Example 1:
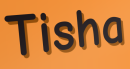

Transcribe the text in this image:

Tisha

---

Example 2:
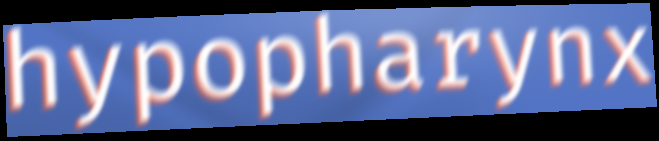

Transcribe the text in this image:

hypopharynx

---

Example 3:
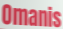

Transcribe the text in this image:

Omanis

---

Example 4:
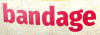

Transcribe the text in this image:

bandage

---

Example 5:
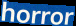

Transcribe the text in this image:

horror